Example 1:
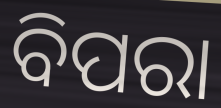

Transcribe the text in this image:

ବିପରା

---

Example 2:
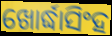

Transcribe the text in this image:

ଖୋର୍ଦ୍ଧାସିଂହ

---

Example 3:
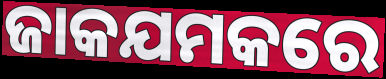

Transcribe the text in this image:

ଜାକଯମକରେ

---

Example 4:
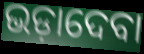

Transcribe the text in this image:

ଭଡ଼ାଦେବା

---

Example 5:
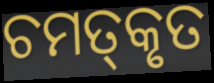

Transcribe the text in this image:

ଚମତ୍‌କୃତ